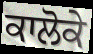
ਕਾਲੋਕੇ